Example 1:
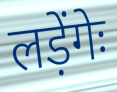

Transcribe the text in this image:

लड़ेंगेः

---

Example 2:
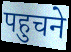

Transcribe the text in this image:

पहुचने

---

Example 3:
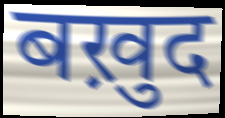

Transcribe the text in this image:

बख़ुद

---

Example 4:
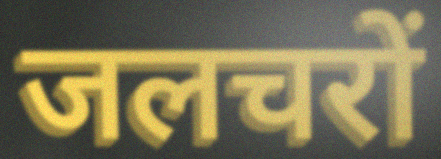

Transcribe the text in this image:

जलचरों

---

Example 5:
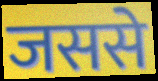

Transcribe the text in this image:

जससे